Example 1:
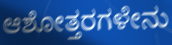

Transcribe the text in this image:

ಆಶೋತ್ತರಗಳೇನು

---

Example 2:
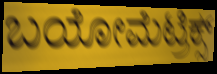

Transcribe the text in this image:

ಬಯೋಮೆಟ್ರಿಕ್ಸ್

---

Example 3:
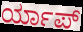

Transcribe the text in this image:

ರ್ಯಾಪ್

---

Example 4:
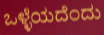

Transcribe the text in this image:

ಒಳ್ಳೆಯದೆಂದು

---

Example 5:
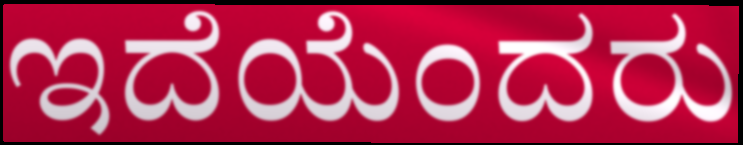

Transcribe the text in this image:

ಇದೆಯೆಂದರು